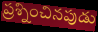
ప్రశ్నించినపుడు